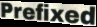
Prefixed